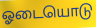
ஓடையொடு